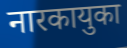
नारकायुका